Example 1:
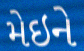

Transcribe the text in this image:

મેઇને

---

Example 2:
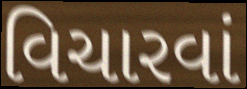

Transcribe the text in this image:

વિચારવાં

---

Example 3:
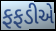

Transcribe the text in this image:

ફફડીએ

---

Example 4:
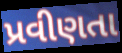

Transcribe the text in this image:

પ્રવીણતા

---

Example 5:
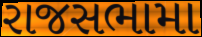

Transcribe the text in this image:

રાજસભામા